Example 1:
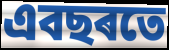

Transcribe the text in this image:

এবছৰতে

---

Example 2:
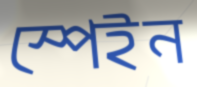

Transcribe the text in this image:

স্পেইন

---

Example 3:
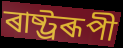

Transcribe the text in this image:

ৰাষ্ট্ৰৰূপী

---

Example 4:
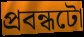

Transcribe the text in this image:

প্ৰবন্ধটো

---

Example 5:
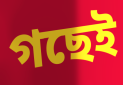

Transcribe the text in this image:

গছেই